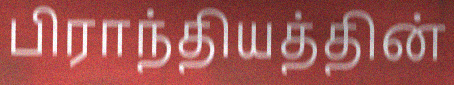
பிராந்தியத்தின்